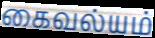
கைவல்யம்